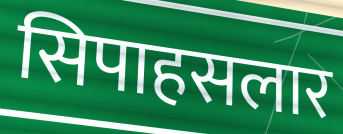
सिपाहसलार